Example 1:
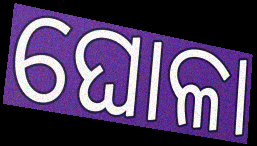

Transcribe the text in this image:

ଘୋଳା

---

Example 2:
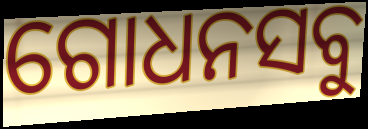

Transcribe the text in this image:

ଗୋଧନସବୁ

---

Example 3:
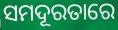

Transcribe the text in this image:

ସମଦୂରତାରେ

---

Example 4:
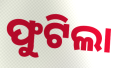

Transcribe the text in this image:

ଫୁଟିଲା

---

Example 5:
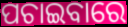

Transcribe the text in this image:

ପଚାଇବାରେ